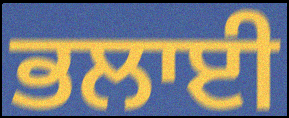
ਭਲਾਈ